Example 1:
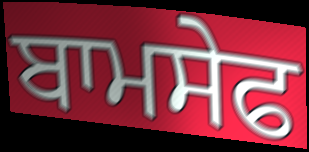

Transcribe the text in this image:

ਬਾਮਸੇਫ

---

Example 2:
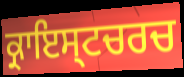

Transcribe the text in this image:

ਕ੍ਰਾਇਸ੍ਟਚਰਚ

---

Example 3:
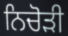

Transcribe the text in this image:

ਨਿਚੋੜੀ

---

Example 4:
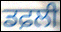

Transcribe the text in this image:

ਡਫ਼ਲੀ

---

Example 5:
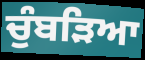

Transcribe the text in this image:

ਚੁੰਬੜਿਆ